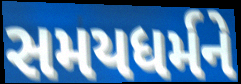
સમયધર્મને